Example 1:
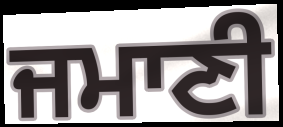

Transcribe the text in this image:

ਜਮਾਣੀ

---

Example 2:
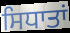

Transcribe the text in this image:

ਸਿਧਾਤਾਂ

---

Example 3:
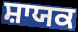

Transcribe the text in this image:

ਸ਼ਾਯਕ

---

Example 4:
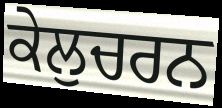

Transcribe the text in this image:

ਕੇਲੁਚਰਨ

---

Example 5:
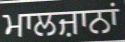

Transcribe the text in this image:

ਮਾਲਜ਼ਾਨਾਂ